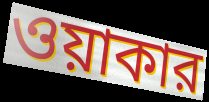
ওয়াকার